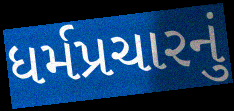
ધર્મપ્રચારનું